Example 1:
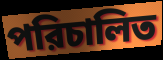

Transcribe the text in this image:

পরিচালিত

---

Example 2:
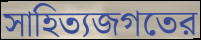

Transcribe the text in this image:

সাহিত্যজগতের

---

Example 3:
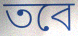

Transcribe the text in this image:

তবে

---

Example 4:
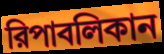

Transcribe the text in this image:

রিপাবলিকান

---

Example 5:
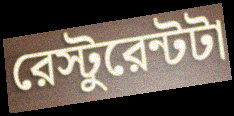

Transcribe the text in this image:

রেস্টুরেন্টটা